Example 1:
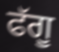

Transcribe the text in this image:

ਫੱਗੂ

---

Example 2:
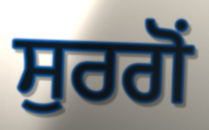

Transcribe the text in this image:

ਸੁਰਗੋਂ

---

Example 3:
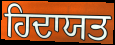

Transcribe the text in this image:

ਹਿਦਾਯਤ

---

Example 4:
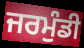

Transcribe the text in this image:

ਜਰਮੁੰਡੀ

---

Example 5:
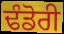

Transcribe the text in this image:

ਢੰਡੋਰੀ